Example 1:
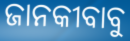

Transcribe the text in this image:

ଜାନକୀବାବୁ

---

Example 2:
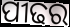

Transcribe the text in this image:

ପୀଢର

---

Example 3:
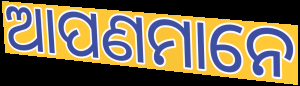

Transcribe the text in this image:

ଆପଣମାନେ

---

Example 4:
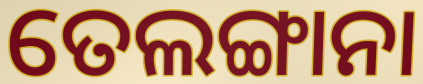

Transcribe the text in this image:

ତେଲଙ୍ଗାନା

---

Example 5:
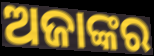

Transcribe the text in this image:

ଅଜାଙ୍କର